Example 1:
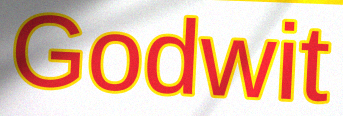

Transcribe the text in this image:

Godwit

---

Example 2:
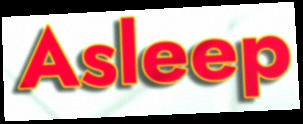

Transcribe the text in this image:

Asleep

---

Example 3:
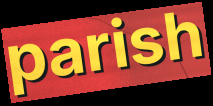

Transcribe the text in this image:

parish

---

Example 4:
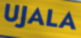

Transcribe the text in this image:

UJALA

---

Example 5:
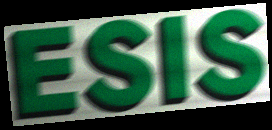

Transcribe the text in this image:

ESIS